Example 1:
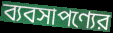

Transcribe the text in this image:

ব্যবসাপণ্যের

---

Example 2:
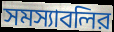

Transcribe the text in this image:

সমস্যাবলির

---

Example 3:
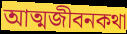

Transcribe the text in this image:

আত্মজীবনকথা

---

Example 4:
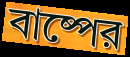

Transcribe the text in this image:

বাষ্পের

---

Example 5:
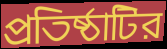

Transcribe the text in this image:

প্রতিষ্ঠাটির